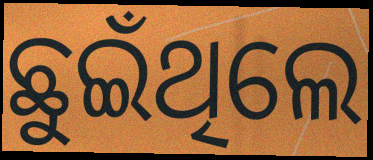
ଛୁଇଁଥିଲେ